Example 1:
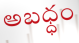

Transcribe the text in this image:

అబధ్ధం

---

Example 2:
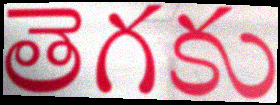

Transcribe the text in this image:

తెగకు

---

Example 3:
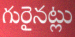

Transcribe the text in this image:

గురైనట్లు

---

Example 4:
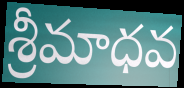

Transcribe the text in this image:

శ్రీమాధవ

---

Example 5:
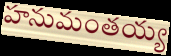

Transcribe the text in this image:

హనుమంతయ్య